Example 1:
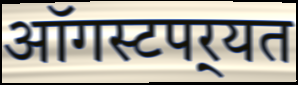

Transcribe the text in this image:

ऑगस्टपर्यत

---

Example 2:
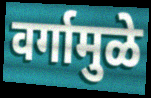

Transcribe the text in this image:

वर्गामुळे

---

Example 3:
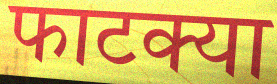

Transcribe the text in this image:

फाटक्या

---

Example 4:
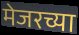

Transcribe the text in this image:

मेजरच्या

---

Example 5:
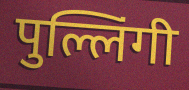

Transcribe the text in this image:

पुल्लिंगी